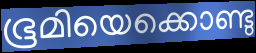
ഭൂമിയെക്കൊണ്ടു